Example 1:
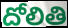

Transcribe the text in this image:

దోలితి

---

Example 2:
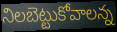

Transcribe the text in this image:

నిలబెట్టుకోవాలన్న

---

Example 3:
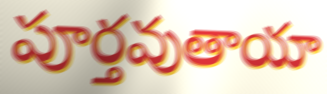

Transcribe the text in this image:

పూర్తవుతాయా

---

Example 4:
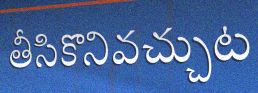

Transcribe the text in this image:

తీసికొనివచ్చుట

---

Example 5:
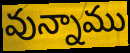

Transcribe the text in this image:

వున్నాము